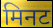
मिनट